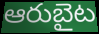
ఆరుబైట